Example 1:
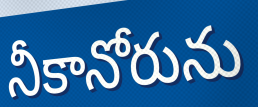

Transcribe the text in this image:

నీకానోరును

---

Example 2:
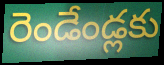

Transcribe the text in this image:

రెండేండ్లకు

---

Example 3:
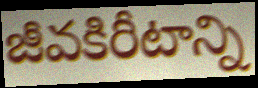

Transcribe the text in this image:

జీవకిరీటాన్ని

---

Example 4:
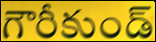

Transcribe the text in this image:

గౌరీకుండ్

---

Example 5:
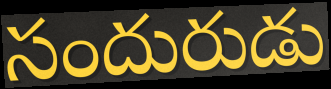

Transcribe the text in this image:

సందురుడు